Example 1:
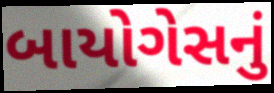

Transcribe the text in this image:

બાયોગેસનું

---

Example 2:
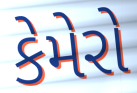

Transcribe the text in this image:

કેમેરો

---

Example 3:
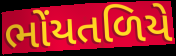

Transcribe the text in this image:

ભોંયતળિયે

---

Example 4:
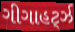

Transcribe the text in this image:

ગીગાહર્ટ્ઝ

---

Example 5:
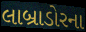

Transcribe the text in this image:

લાબ્રાડોરના